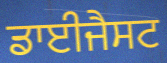
ਡਾਈਜੈਸਟ